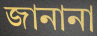
জানানা